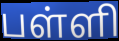
பள்ளி